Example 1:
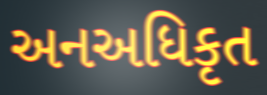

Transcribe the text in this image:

અનઅધિકૃત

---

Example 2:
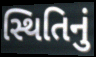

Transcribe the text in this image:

સ્થિતિનું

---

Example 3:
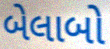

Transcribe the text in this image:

બેલાબો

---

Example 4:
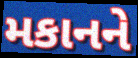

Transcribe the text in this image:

મકાનને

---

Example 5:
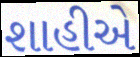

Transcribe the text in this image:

શાહીએ